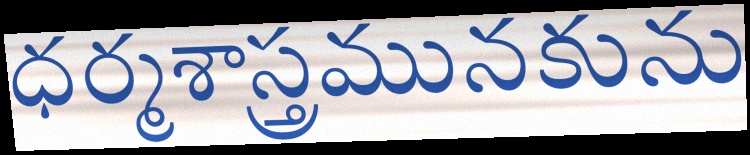
ధర్మశాస్త్రమునకును